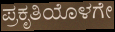
ಪ್ರಕೃತಿಯೊಳಗೇ